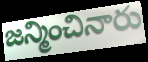
జన్మించినారు